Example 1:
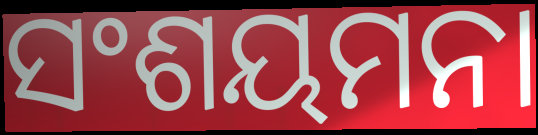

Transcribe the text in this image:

ସଂଶୟମନା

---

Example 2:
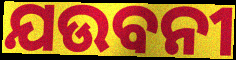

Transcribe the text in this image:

ଯଉବନୀ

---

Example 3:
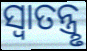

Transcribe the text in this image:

ସ୍ବାତନ୍ତ୍ରୢ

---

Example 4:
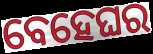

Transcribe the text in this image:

ବେହେଘର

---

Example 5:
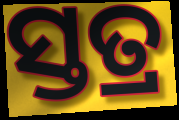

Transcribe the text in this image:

ସ୍ତତ୍ର